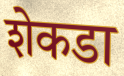
शेकडा